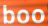
boo